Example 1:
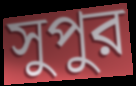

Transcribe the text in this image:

সুপুর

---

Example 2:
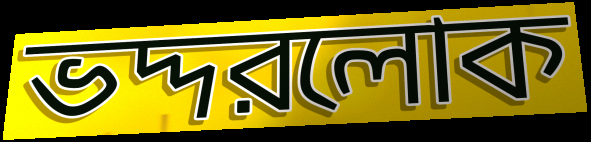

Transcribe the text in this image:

ভদ্দরলোক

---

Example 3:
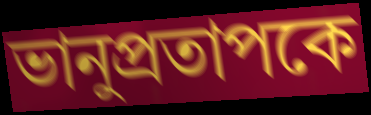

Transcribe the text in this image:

ভানুপ্রতাপকে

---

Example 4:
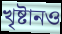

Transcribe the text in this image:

খৃষ্টানও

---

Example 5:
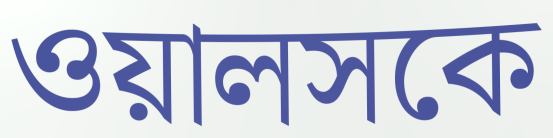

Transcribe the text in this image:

ওয়ালসকে